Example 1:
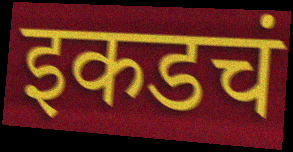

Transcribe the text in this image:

इकडचं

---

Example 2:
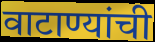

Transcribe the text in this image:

वाटाण्यांची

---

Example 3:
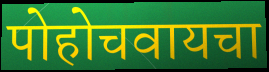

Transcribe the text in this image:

पोहोचवायचा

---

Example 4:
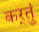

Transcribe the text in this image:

कर्तुं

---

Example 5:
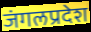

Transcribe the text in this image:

जंगलप्रदेश